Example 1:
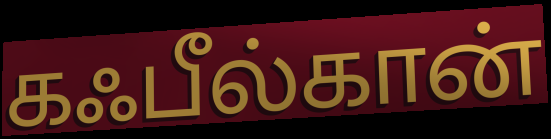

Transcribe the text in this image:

கஃபீல்கான்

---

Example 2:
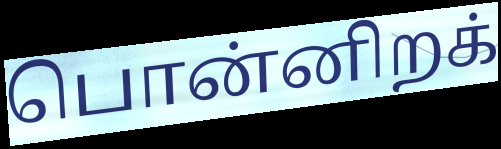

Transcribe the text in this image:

பொன்னிறக்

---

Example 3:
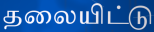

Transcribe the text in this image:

தலையிட்டு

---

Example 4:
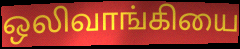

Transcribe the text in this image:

ஒலிவாங்கியை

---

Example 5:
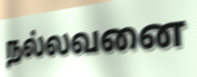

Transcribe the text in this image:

நல்லவனை